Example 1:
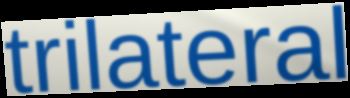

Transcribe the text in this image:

trilateral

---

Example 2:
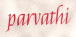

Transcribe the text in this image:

parvathi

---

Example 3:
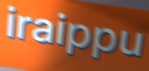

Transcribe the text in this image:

iraippu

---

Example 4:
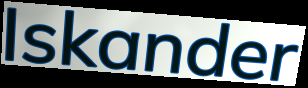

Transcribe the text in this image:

Iskander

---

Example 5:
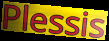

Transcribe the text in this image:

Plessis